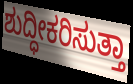
ಶುದ್ಧೀಕರಿಸುತ್ತಾ